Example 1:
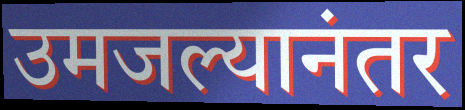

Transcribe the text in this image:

उमजल्यानंतर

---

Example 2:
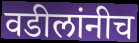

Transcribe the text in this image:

वडीलांनीच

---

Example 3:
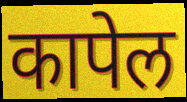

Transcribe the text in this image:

कापेल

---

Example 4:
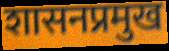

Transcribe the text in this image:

शासनप्रमुख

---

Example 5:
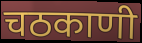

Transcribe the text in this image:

चठकाणी